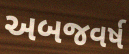
અબજવર્ષ